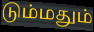
டும்மதும்